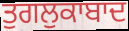
ਤੁਗਲੁਕਾਬਾਦ